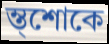
ম্ত্শোকে